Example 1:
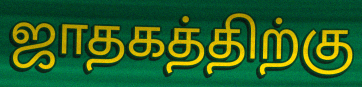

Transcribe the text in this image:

ஜாதகத்திற்கு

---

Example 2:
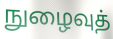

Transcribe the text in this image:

நுழைவுத்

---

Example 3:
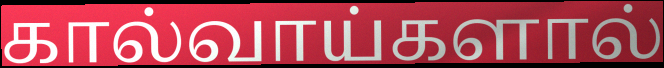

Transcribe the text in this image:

கால்வாய்களால்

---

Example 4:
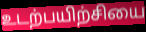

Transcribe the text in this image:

உடற்பயிற்சியை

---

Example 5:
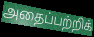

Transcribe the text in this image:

அதைப்பற்றிக்